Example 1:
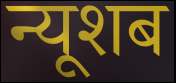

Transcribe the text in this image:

न्यूशब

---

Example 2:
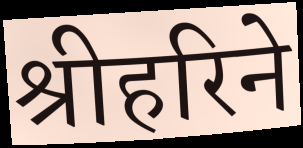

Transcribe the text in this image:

श्रीहरिने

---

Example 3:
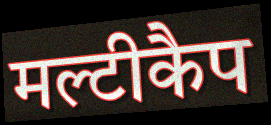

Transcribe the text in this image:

मल्‍टीकैप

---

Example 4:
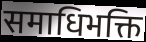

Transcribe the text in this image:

समाधिभक्ति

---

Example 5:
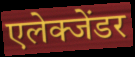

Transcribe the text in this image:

एलेक्‍जेंडर